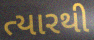
ત્યારથી